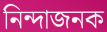
নিন্দাজনক